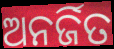
ଅନର୍ଜିତ